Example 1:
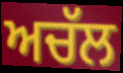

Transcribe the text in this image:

ਅਚੱਲ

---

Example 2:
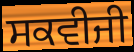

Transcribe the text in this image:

ਸਕਵੀਜੀ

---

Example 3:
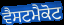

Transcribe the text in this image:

ਵੈਸਟਮੈਕੋਟ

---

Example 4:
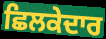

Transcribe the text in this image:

ਛਿਲਕੇਦਾਰ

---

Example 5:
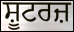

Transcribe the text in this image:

ਸ਼ੂਟਰਜ਼